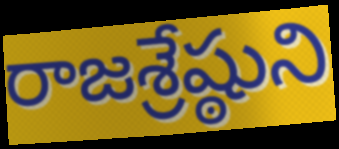
రాజశ్రేష్ఠుని